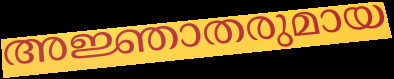
അജ്ഞാതരുമായ